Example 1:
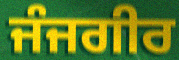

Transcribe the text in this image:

ਜੰਜਗੀਰ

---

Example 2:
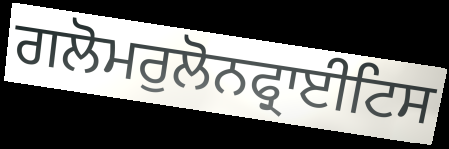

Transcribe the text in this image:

ਗਲੋਮਰੁਲੋਨਫ੍ਰਾਈਟਿਸ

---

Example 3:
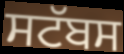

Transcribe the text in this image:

ਸਟੱਬਸ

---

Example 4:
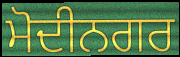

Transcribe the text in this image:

ਮੋਦੀਨਗਰ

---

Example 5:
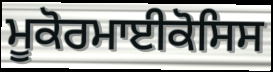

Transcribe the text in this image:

ਮੂਕੋਰਮਾਈਕੋਸਿਸ